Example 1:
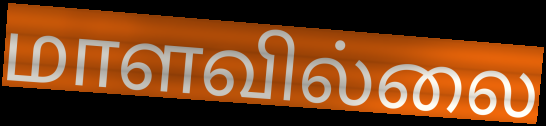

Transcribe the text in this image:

மாளவில்லை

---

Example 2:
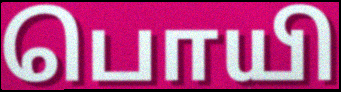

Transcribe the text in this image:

பொயி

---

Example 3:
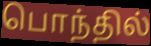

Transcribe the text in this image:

பொந்தில்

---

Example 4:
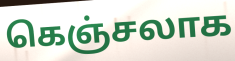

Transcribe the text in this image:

கெஞ்சலாக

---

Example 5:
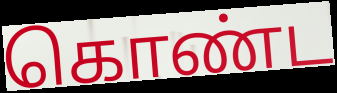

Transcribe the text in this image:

கொண்ட